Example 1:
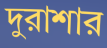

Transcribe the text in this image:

দুরাশার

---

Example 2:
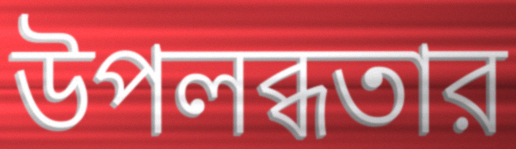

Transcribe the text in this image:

উপলব্ধতার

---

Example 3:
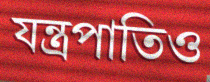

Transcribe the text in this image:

যন্ত্রপাতিও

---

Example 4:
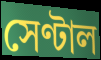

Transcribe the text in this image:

সেণ্টাল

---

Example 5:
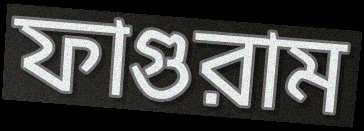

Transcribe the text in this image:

ফাগুরাম